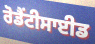
ਰੋਡੈਂਟੀਸਾਈਡ